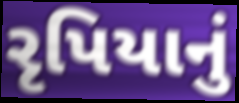
રૃપિયાનું